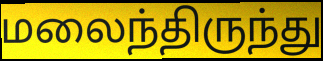
மலைந்திருந்து